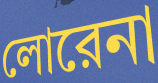
লোরেনা